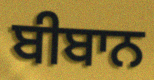
ਬੀਬਾਨ